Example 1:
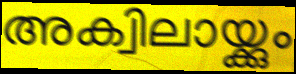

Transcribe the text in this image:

അക്വിലായ്ക്കും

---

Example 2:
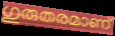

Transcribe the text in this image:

ഗുരുതരമാണ്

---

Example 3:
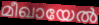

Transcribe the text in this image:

മീഖായേൽ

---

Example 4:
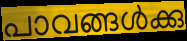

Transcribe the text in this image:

പാവങ്ങൾക്കു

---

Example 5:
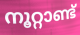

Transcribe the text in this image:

നൂറ്റാണ്ട്